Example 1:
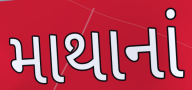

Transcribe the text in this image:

માથાનાં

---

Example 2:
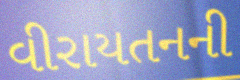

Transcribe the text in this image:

વીરાયતનની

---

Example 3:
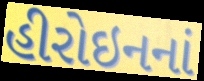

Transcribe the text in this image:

હીરોઇનનાં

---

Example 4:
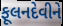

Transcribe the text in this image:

ફૂલનદેવીને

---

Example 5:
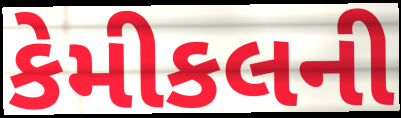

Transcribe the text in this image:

કેમીકલની